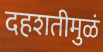
दहशतीमुळं